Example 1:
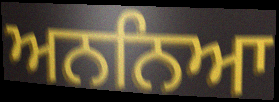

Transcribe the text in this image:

ਅਨਨਿਆ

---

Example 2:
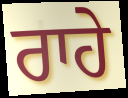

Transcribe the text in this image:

ਰਾਹੇ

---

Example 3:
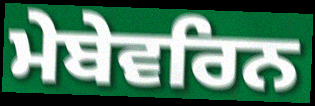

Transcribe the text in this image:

ਮੇਬੇਵਰਿਨ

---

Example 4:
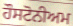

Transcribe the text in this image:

ਹੌਸਟੋਨੀਅਮ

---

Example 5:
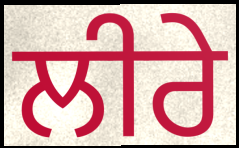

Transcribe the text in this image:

ਲੀਰੇ